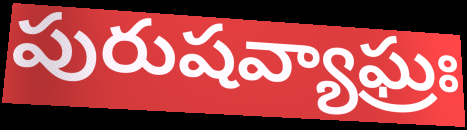
పురుషవ్యాఘ్రః